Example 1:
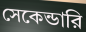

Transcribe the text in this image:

সেকেন্ডারি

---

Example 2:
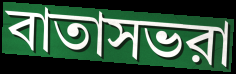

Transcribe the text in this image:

বাতাসভরা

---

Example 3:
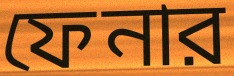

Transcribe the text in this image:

ফেনার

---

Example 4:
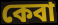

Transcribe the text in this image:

কেবা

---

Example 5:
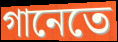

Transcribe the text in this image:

গানেতে